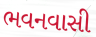
ભવનવાસી